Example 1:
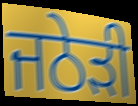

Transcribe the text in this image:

ਜਠੇੜੀ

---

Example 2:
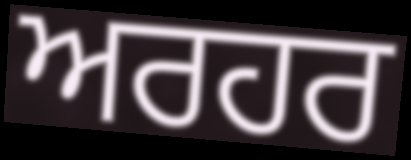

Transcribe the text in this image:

ਅਰਹਰ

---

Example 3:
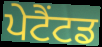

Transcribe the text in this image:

ਪੇਟੈਂਟਡ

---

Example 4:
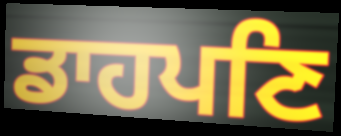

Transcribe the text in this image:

ਡਾਹਪਣਿ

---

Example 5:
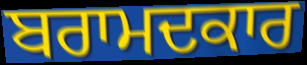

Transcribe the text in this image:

ਬਰਾਮਦਕਾਰ